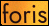
foris